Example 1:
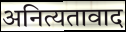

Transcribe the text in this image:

अनित्यतावाद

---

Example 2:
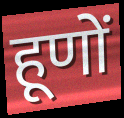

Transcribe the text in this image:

हूणों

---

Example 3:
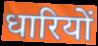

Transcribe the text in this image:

धारियों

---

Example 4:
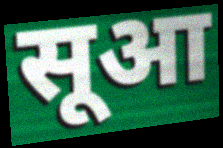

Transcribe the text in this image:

सूआ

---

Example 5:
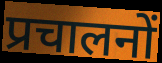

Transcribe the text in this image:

प्रचालनों